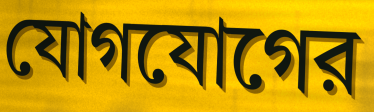
যোগযোগের